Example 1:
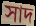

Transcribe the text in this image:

সাদ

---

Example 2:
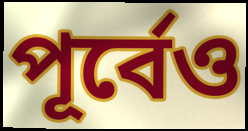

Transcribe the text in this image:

পূৰ্বেও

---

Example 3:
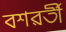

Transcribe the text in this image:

বশৱৰ্তী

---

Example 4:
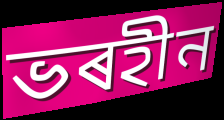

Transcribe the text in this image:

ভৰহীন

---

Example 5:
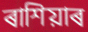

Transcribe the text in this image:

ৰাশিয়াৰ